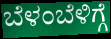
ಬೆಳಂಬೆಳಿಗ್ಗೆ